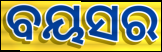
ବୟସର